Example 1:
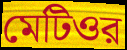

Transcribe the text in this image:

মেটিওর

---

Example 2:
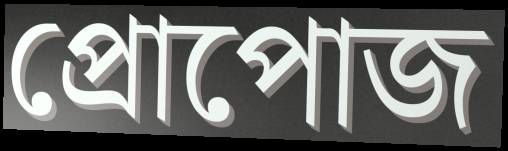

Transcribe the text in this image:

প্রোপোজ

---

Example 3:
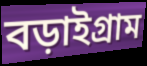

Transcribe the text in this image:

বড়াইগ্রাম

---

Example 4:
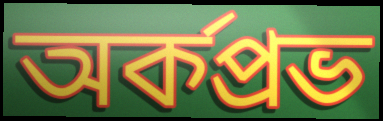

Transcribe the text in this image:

অর্কপ্রভ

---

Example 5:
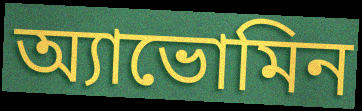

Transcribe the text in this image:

অ্যাভোমিন